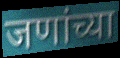
जणांच्या